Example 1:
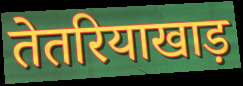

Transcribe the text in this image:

तेतरियाखाड़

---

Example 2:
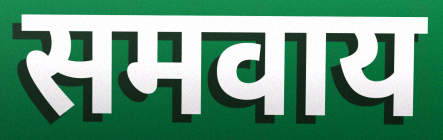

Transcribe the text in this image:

समवाय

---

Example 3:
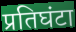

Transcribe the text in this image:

प्रतिघंटा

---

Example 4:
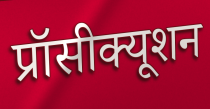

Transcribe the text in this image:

प्रॉसीक्यूशन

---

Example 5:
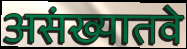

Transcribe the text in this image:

असंख्यातवे